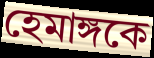
হেমাঙ্গকে